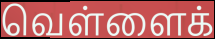
வெள்ளைக்